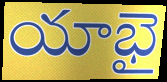
యాభై